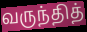
வருந்தித்